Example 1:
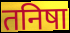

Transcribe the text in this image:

तनिषा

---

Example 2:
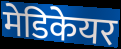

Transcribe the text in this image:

मेडिकेयर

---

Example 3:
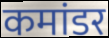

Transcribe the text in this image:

कमांडर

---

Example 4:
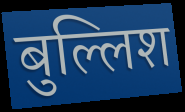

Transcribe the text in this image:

बुल्लिश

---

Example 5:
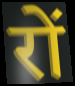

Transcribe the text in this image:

रों